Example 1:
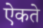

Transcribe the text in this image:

ऐकते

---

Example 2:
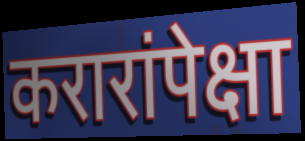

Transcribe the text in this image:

करारांपेक्षा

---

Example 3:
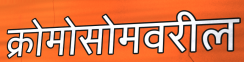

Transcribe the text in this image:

क्रोमोसोमवरील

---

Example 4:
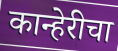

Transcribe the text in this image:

कान्हेरीचा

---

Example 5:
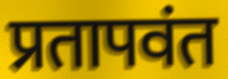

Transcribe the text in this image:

प्रतापवंत